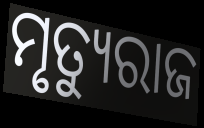
ମୃତ୍ୟୁରାଜ